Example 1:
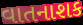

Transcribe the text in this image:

વાતનાશક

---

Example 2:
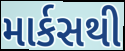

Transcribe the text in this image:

માર્કસથી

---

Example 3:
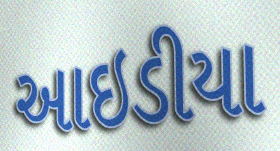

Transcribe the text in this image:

આઇડીયા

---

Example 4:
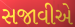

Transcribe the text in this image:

સજાવીએ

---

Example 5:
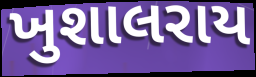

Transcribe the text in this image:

ખુશાલરાય